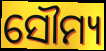
ସୌମ୍ଯ